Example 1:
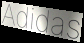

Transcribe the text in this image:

Adidas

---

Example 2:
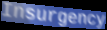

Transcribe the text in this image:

Insurgency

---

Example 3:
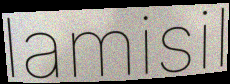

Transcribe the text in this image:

lamisil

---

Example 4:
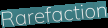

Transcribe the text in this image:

Rarefaction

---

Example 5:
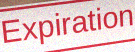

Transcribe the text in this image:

Expiration